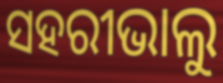
ସହରୀଭାଲୁ